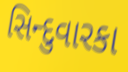
સિન્દુવારકા